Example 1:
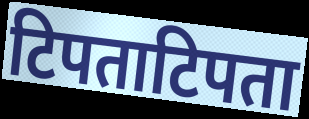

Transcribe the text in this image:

टिपताटिपता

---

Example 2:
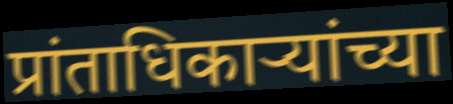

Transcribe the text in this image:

प्रांताधिकाऱ्यांच्या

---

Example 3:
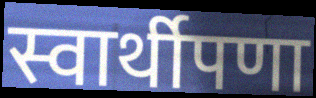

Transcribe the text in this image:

स्वार्थीपणा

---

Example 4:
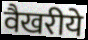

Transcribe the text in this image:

वैखरीये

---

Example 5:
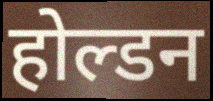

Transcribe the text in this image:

होल्डन